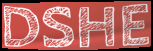
DSHE